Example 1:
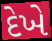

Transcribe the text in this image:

દેખે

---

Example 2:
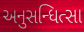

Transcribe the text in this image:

અનુસન્ધિત્સા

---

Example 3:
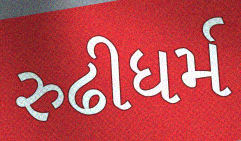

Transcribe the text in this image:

રુઢીધર્મ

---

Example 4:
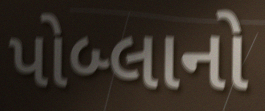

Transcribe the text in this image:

પોબ્લાનો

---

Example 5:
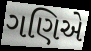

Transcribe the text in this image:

ગણિએ